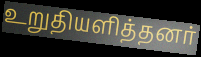
உறுதியளித்தனர்